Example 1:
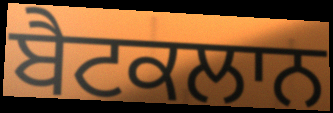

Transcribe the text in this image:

ਬੈਟਕਲਾਨ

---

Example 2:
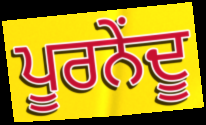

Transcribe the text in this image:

ਪੂਰਨੇਂਦੂ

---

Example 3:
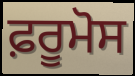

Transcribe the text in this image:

ਫ਼ਰੂਮੋਸ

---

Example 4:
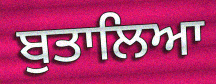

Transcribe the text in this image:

ਬੁਤਾਲਿਆ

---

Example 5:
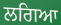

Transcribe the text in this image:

ਲਗਿਆ